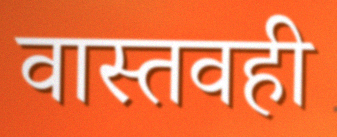
वास्तवही